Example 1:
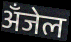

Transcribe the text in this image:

अँजेल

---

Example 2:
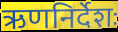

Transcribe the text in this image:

ऋणनिर्देशः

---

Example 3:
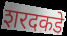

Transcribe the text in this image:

शरदकडे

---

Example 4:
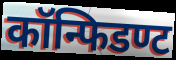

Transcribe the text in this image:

कॉन्फिडण्ट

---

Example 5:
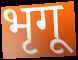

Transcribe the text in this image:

भृगू